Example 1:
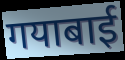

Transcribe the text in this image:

गयाबाई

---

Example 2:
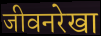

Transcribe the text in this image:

जीवनरेखा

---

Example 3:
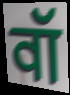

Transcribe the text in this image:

वॉ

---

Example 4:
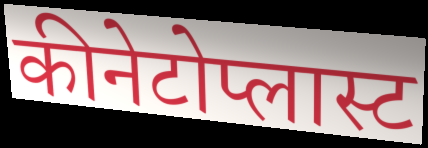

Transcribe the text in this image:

कीनेटोप्लास्ट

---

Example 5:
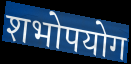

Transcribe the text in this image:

शभोपयोग